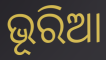
ଭୂରିଆ